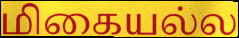
மிகையல்ல